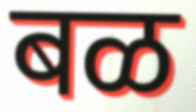
बळ